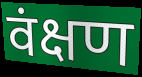
वंक्षण